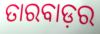
ତାରବାଡ଼ର